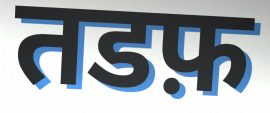
तडफ़